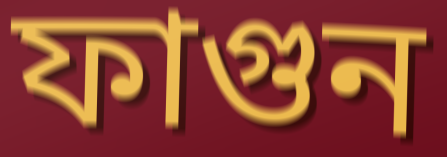
ফাগুন